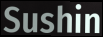
Sushin